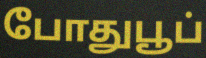
போதுபூப்